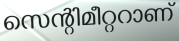
സെന്റിമീറ്ററാണ്